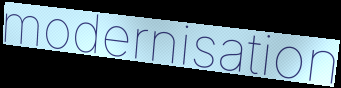
modernisation